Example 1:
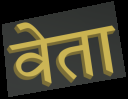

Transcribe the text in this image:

वेता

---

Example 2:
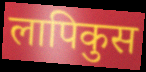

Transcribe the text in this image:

लापिकुस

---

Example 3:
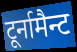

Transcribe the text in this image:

टूर्नामैन्ट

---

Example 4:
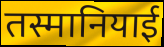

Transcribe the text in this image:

तस्मानियाई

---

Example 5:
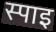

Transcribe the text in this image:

स्पाइ